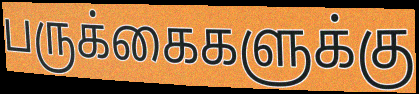
பருக்கைகளுக்கு